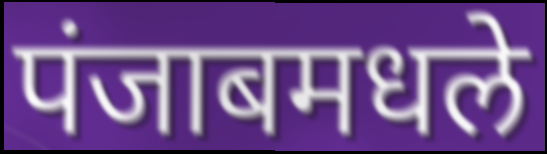
पंजाबमधले